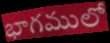
భాగములో